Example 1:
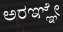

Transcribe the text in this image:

ಅರಞ್ಞೇ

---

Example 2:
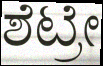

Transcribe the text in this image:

ಶೆಟ್ರೇ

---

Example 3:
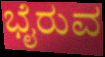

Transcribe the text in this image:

ಭೈರುವ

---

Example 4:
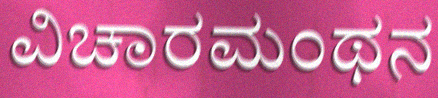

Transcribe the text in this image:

ವಿಚಾರಮಂಥನ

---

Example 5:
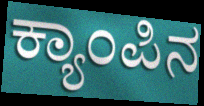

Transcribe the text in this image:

ಕ್ಯಾಂಪಿನ